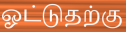
ஓட்டுதற்கு